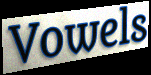
Vowels